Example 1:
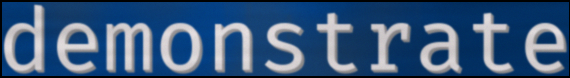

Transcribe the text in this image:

demonstrate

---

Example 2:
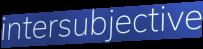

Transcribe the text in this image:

intersubjective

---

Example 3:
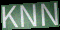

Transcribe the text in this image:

KNN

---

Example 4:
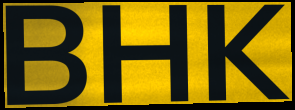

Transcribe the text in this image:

BHK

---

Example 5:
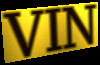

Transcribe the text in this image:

VIN